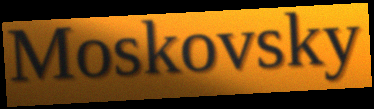
Moskovsky